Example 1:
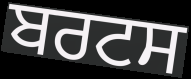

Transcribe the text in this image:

ਬਰਟਸ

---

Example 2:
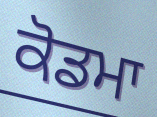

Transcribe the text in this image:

ਕੋਡਮਾ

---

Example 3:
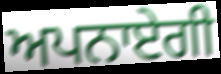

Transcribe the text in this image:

ਅਪਨਾਏਗੀ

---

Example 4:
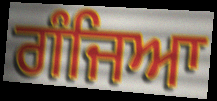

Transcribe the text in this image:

ਗੰਜਿਆ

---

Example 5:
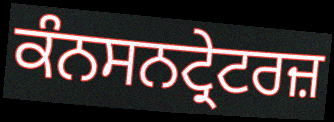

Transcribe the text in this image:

ਕੰਨਸਨਟ੍ਰੇਟਰਜ਼